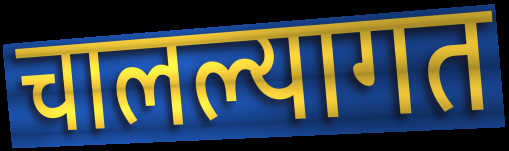
चालल्यागत